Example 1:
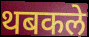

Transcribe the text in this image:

थबकले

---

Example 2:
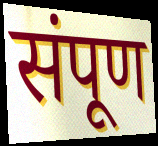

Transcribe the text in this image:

संपूण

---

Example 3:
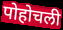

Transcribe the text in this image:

पोहोचली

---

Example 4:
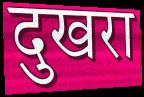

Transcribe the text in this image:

दुखरा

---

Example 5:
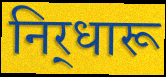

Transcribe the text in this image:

निर्धारू